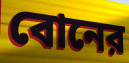
বোনের